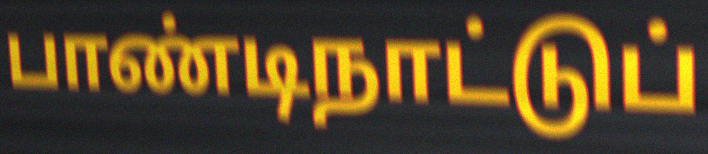
பாண்டிநாட்டுப்